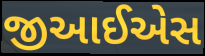
જીઆઈએસ